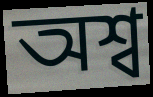
অশ্ব